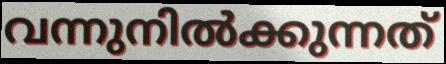
വന്നുനിൽക്കുന്നത്